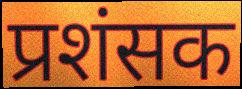
प्रशंसक